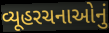
વ્યૂહરચનાઓનું